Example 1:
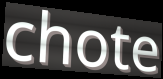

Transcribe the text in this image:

chote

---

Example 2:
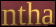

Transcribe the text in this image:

ntha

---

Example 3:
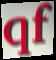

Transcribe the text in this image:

qf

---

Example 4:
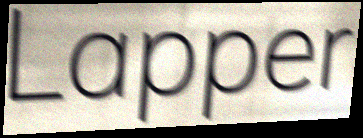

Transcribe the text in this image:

Lapper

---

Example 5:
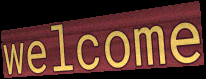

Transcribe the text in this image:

welcome